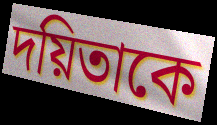
দয়িতাকে